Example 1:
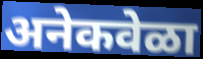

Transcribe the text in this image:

अनेकवेळा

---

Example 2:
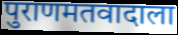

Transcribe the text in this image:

पुराणमतवादाला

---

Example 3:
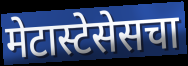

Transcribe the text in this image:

मेटास्टेसेसचा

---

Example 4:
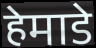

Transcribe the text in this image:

हेमाडे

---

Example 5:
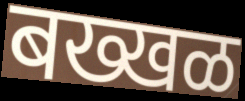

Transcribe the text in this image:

बख्खळ